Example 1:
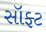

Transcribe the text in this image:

સૉફ્ટ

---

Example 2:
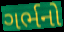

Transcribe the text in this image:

ગર્ભનો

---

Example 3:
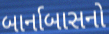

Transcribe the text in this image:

બાર્નાબાસનો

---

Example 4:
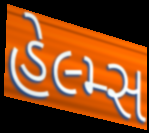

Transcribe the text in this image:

હેલ્મ્સ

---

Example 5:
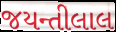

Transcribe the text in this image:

જયન્તીલાલ